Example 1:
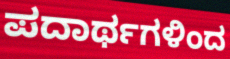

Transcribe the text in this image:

ಪದಾರ್ಥಗಳಿಂದ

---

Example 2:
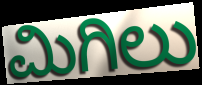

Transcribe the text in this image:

ಮಿಗಿಲು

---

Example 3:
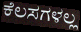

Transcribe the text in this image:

ಕೆಲಸಗಳಲ್ಲ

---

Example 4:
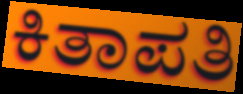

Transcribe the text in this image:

ಕಿತಾಪತಿ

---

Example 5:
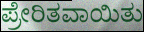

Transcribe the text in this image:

ಪ್ರೇರಿತವಾಯಿತು